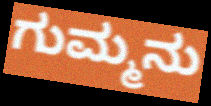
ಗುಮ್ಮನು